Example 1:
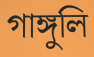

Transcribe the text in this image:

গাঙ্গুলি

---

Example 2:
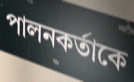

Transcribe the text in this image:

পালনকর্তাকে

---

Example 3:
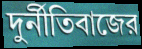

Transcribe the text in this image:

দুর্নীতিবাজের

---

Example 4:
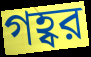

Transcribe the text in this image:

গহ্বর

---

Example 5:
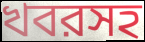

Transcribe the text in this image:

খবরসহ